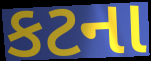
કટના